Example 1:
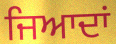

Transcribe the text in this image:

ਜਿਆਦਾਂ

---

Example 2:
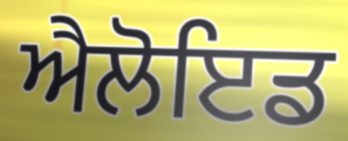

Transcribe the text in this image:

ਐਲੋਇਡ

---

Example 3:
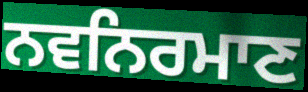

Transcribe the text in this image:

ਨਵਨਿਰਮਾਣ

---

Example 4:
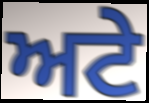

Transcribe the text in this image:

ਅਟੇ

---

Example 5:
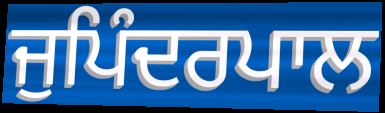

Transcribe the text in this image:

ਜੁਪਿੰਦਰਪਾਲ